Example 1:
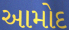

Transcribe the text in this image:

આમોદ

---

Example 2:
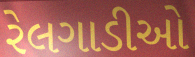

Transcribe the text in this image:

રેલગાડીઓ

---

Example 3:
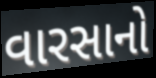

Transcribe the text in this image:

વારસાનો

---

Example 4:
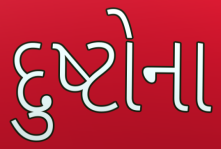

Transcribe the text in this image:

દુષ્ટોના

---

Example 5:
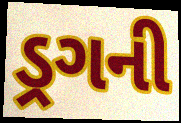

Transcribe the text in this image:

ડ્રગની